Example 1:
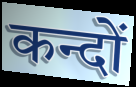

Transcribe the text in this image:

कन्दों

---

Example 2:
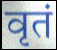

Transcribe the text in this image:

वृतं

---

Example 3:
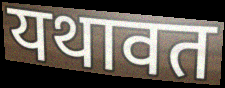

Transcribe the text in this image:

यथावत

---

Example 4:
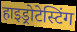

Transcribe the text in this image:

हाइड्रोटेस्टिंग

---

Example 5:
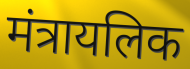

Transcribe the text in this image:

मंत्रायलिक